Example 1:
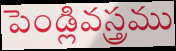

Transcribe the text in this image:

పెండ్లివస్త్రము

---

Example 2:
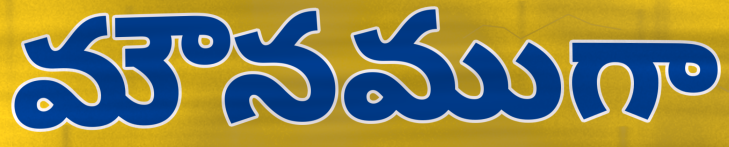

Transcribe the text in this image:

మౌనముగా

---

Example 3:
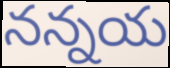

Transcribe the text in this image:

నన్నయ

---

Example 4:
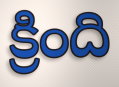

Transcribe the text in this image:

క్రింది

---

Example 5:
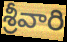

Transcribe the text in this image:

శ్రీవారి